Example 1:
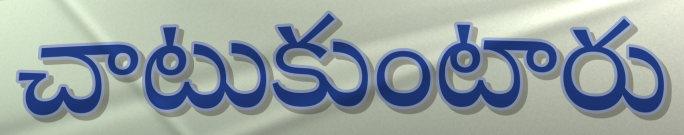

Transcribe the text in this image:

చాటుకుంటారు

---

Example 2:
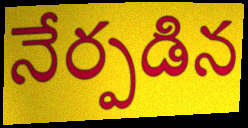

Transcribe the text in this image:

నేర్పడిన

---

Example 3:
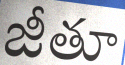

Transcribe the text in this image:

జీతూ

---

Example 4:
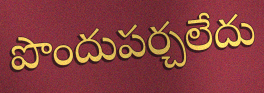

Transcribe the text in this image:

పొందుపర్చలేదు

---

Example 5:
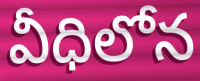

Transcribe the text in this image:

వీధిలోన